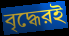
বৃদ্ধেরই